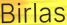
Birlas